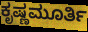
ಕೃಷ್ಣಮೂರ್ತಿ